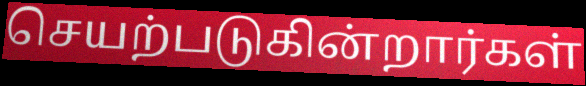
செயற்படுகின்றார்கள்